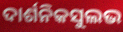
ଦାର୍ଶନିକସୁଲଭ